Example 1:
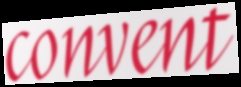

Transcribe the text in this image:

convent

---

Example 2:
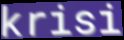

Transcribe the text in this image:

krisi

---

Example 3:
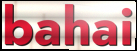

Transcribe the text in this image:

bahai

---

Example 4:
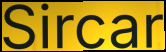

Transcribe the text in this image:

Sircar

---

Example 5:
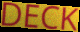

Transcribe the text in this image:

DECK